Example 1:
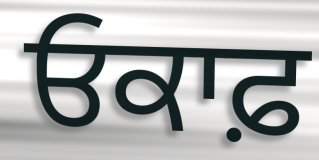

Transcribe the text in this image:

ਓਕਾਫ਼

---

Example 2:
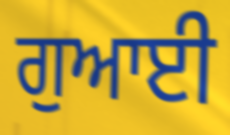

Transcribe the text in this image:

ਗੁਆਈ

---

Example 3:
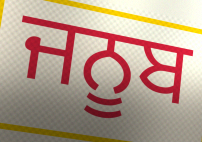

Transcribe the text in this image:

ਜਨੂਬ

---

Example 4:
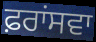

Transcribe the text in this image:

ਫ਼ਰਾਂਸਵਾ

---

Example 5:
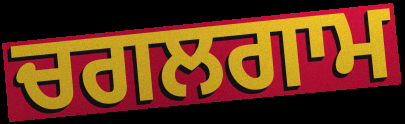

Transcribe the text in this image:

ਚਗਲਗਾਮ